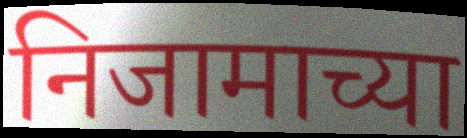
निजामाच्या